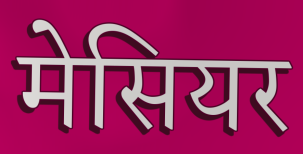
मेसियर